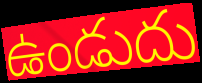
ఉండుదు